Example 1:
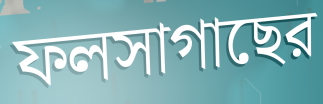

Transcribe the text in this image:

ফলসাগাছের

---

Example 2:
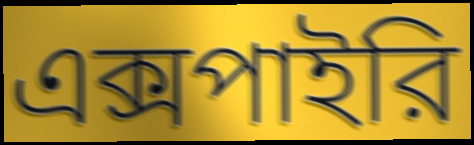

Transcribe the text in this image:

এক্সপাইরি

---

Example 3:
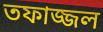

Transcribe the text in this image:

তফাজ্জল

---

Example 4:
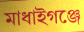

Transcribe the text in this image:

মাধাইগঞ্জে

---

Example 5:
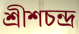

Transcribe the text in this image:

শ্রীশচন্দ্র